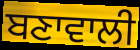
ਬਣਾਵਾਲੀ